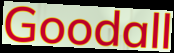
Goodall